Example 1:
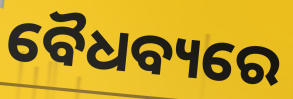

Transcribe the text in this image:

ବୈଧବ୍ୟରେ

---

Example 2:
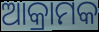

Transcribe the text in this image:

ଆକ୍ରାମକ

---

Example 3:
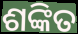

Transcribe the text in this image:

ଶଙ୍କିତ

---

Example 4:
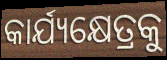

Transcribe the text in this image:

କାର୍ଯ୍ୟକ୍ଷେତ୍ରକୁ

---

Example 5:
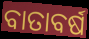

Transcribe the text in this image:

ବାତାବର୍ଷ